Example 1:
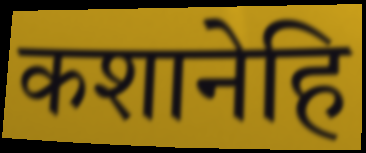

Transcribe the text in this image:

कशानेहि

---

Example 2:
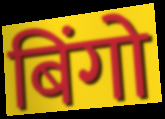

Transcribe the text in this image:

बिंगो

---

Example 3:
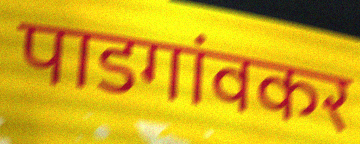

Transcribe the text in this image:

पाडगांवकर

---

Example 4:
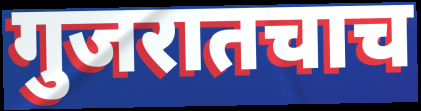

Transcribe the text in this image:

गुजरातचाच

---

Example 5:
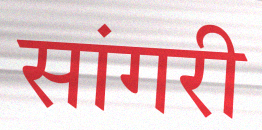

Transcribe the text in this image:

सांगरी